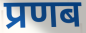
प्रणब